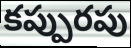
కప్పురపు